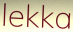
lekka